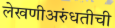
लेखणीअरुंधतीची